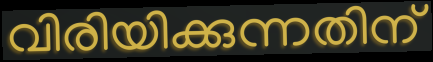
വിരിയിക്കുന്നതിന്